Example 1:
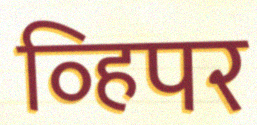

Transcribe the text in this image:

व्हिपर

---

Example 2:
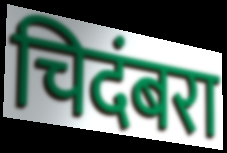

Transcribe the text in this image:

चिदंबरा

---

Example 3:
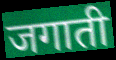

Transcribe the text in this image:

जगाती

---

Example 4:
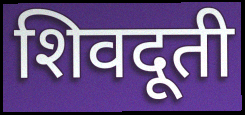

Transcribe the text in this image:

शिवदूती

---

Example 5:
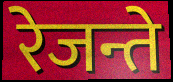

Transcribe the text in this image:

रेजन्ते